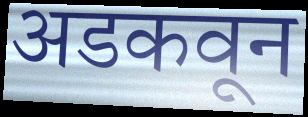
अडकवून